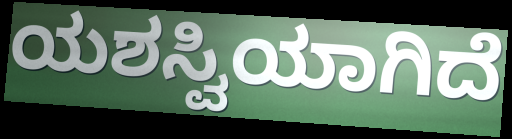
ಯಶಸ್ವಿಯಾಗಿದೆ